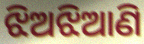
ଝିଅଝିଆଣି